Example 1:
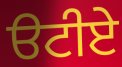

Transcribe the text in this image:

ੳਟੀਏ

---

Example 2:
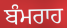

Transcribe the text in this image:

ਬੰਮਰਾਹ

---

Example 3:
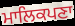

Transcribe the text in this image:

ਮਾਲਿਕਪਣਾ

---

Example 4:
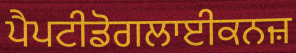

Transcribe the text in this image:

ਪੈਪਟੀਡੋਗਲਾਈਕਨਜ਼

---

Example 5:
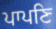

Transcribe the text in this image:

ਪਾਪਣਿ